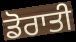
ਡੋਰਾਤੀ